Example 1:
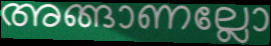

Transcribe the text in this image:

അങ്ങാണല്ലോ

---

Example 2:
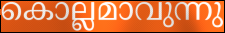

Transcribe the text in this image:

കൊല്ലമാവുന്നു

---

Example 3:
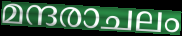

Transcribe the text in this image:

മന്ദരാചലം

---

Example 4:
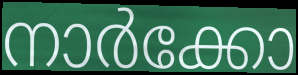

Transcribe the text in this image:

നാർക്കോ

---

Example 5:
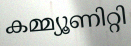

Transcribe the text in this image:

കമ്മ്യൂണിറ്റി